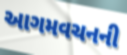
આગમવચનની